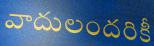
వాదులందరికీ